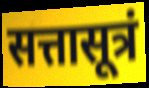
सत्तासूत्रं